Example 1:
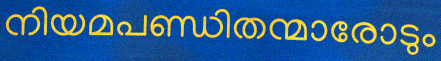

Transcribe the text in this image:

നിയമപണ്ഡിതന്മാരോടും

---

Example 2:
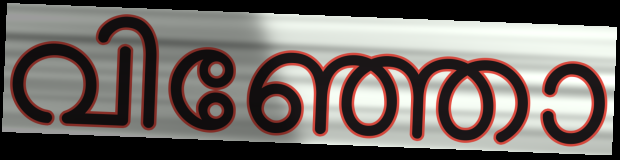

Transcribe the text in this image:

വിഞ്ഞോ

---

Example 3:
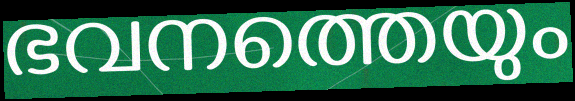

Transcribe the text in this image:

ഭവനത്തെയും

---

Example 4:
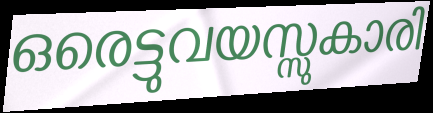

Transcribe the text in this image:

ഒരെട്ടുവയസ്സുകാരി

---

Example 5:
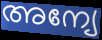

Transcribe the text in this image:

അന്യേ